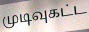
முடிவுகட்ட